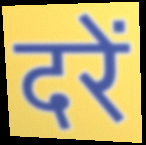
दरें